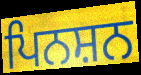
ਪਿਨਸ਼ਨ